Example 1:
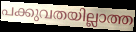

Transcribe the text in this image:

പക്കുവതയില്ലാത്ത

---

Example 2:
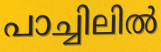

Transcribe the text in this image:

പാച്ചിലിൽ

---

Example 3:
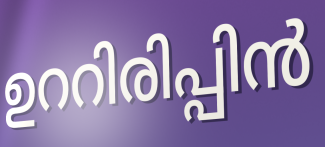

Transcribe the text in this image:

ഉററിരിപ്പിൻ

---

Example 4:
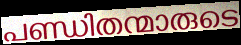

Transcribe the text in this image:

പണ്ഡിതന്മാരുടെ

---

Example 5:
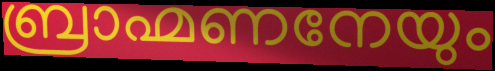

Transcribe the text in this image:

ബ്രാഹ്മണനേയും